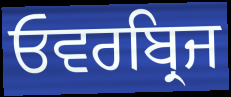
ਓਵਰਬ੍ਰਿਜ